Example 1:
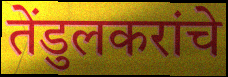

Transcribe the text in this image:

तेंडुलकरांचे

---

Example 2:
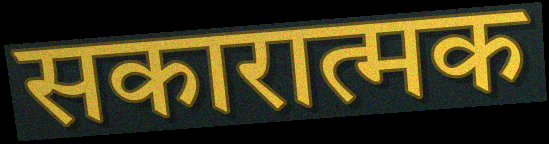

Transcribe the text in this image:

सकारात्‍मक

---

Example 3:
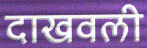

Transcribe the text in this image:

दाखवली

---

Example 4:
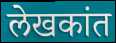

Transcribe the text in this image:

लेखकांत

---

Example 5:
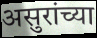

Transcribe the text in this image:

असुरांच्या